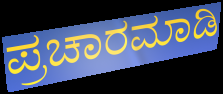
ಪ್ರಚಾರಮಾಡಿ